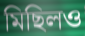
মিছিলও